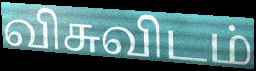
விசுவிடம்